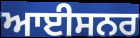
ਆਈਸਨਰ